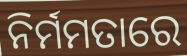
ନିର୍ମମତାରେ